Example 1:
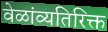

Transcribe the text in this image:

वेळांव्यतिरिक्त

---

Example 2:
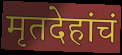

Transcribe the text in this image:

मृतदेहांचं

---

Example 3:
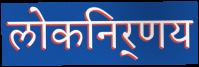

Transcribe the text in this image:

लोकनिर्णय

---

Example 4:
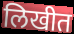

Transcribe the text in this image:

लिखीत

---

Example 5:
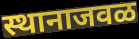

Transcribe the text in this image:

स्थानाजवळ